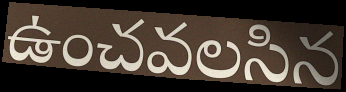
ఉంచవలసిన